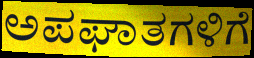
ಅಪಘಾತಗಳಿಗೆ